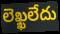
లెఖ్ఖలేదు